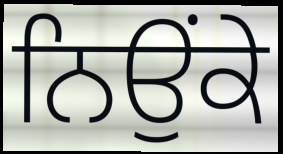
ਨਿਉਂਕੇ